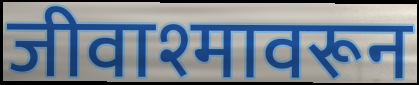
जीवाश्मावरून